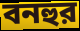
বনহুর